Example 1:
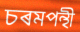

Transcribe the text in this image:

চৰমপন্থী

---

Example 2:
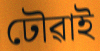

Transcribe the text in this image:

ঢৌৱাই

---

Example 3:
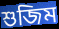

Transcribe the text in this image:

শুজিম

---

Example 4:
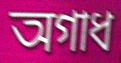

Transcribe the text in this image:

অগাধ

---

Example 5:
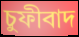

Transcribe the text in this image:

চুফীবাদ